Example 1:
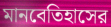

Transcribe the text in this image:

মানবেতিহাসের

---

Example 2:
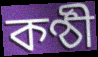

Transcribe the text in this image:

কণ্ঠী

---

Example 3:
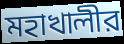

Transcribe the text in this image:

মহাখালীর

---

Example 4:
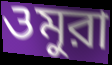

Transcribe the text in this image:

ওমুরা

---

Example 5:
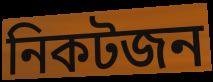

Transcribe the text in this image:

নিকটজন